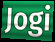
Jogi